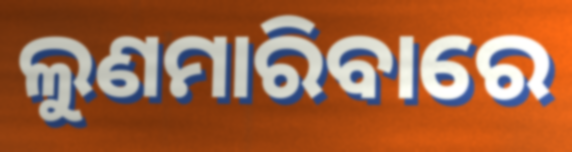
ଲୁଣମାରିବାରେ